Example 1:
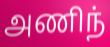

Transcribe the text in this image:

அணிந்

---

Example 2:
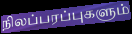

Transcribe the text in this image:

நிலப்பரப்புகளும்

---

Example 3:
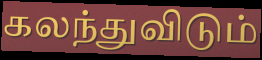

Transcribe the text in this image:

கலந்துவிடும்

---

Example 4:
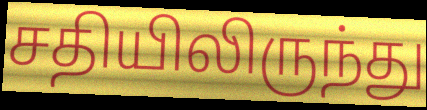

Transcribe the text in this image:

சதியிலிருந்து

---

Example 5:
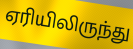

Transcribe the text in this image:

ஏரியிலிருந்து